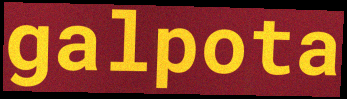
galpota